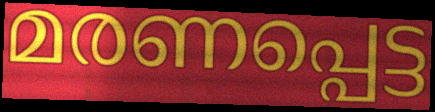
മരണപ്പെട്ട